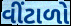
વીંટાળો